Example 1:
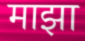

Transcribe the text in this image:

माझा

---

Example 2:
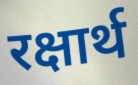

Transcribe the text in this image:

रक्षार्थ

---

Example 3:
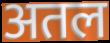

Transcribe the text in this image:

अतल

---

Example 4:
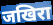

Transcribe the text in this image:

जखिरा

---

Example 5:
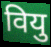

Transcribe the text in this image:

वियु